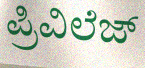
ಪ್ರಿವಿಲೆಜ್